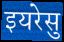
इयरेसु